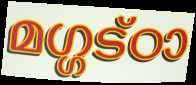
മഗ്ഗട്ഠാ